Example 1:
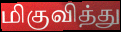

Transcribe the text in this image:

மிகுவித்து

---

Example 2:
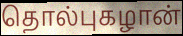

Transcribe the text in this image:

தொல்புகழான்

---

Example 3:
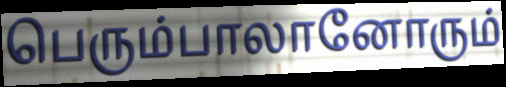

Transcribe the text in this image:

பெரும்பாலானோரும்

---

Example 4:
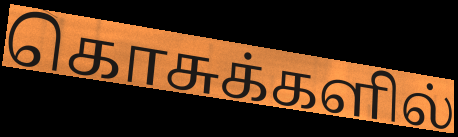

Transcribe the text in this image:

கொசுக்களில்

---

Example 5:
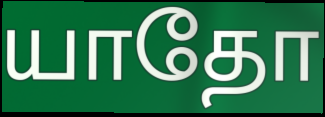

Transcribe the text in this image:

யாதோ